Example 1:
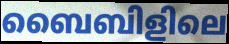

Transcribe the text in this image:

ബൈബിളിലെ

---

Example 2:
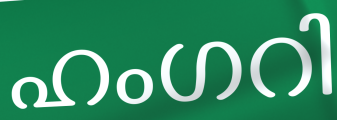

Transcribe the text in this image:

ഹംഗറി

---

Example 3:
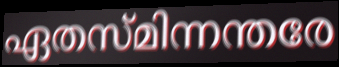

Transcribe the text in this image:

ഏതസ്മിന്നന്തരേ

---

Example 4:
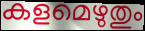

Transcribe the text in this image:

കളമെഴുതും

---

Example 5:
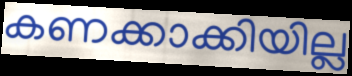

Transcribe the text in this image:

കണക്കാക്കിയില്ല